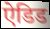
ऐडिड